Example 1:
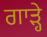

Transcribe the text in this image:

ਗਾੜ੍ਹੇ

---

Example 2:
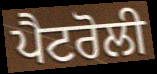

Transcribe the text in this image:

ਪੈਟਰੋਲੀ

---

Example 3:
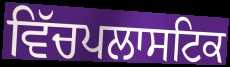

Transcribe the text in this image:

ਵਿੱਚਪਲਾਸਟਿਕ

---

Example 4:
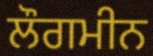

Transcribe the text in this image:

ਲੌਗਮੀਨ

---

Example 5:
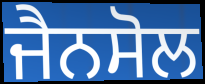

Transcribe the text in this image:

ਜੈਨਸੋਲ